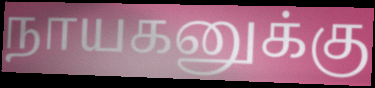
நாயகனுக்கு